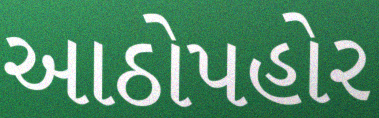
આઠોપહોર